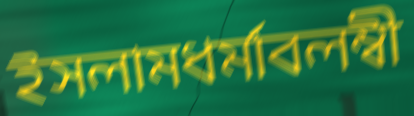
ইসলামধর্মাবলম্বী